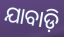
ଯାବାଡ଼ି